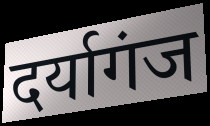
दर्यागंज